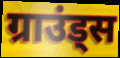
ग्राउंड्स